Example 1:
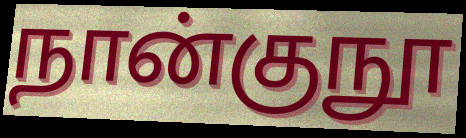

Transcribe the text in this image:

நான்குநூ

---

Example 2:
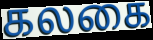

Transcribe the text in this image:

கலகை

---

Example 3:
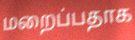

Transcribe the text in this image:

மறைப்பதாக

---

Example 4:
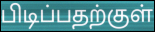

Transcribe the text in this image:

பிடிப்பதற்குள்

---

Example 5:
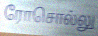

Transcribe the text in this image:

ரோசொல்லு